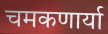
चमकणार्या